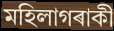
মহিলাগৰাকী